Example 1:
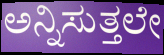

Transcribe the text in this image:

ಅನ್ನಿಸುತ್ತಲೇ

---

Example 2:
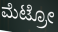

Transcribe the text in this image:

ಮೆಟ್ರೋ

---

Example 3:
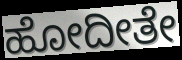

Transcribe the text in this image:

ಹೋದೀತೇ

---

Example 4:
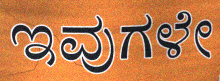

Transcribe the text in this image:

ಇವುಗಳೇ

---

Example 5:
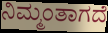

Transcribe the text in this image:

ನಿಮ್ಮಂತಾಗದೆ